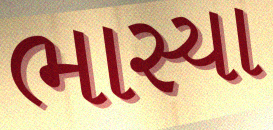
ભાસ્યા